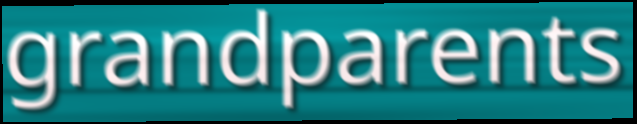
grandparents